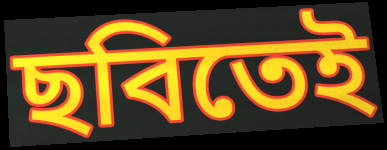
ছবিতেই